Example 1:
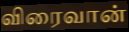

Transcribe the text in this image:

விரைவான்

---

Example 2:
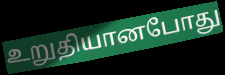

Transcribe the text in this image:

உறுதியானபோது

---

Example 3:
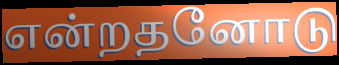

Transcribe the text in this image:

என்றதனோடு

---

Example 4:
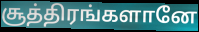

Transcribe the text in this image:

சூத்திரங்களானே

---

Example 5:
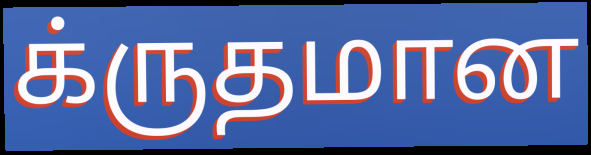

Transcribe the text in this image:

க்ருதமான